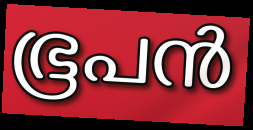
ഭൂപൻ